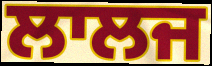
ਲਾਲਜ